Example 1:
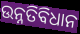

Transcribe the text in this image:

ଉନ୍ନତିବିଧାନ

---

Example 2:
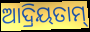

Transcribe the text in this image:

ଆଦ୍ରିୟତାମ୍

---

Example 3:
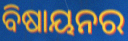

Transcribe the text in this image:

ବିଷାୟନର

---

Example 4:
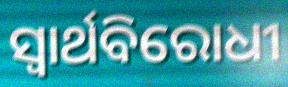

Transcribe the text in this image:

ସ୍ବାର୍ଥବିରୋଧୀ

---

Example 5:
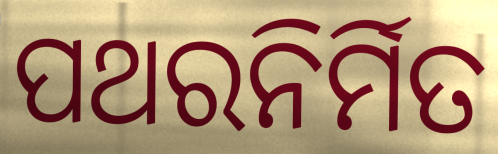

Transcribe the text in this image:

ପଥରନିର୍ମିତ